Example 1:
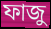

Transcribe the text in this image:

ফাজু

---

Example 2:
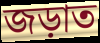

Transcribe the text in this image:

জড়াত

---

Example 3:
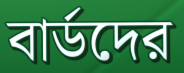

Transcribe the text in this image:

বার্ডদের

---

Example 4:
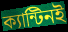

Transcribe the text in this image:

ক্যান্টিনই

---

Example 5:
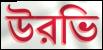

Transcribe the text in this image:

উরভি